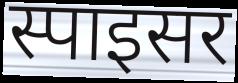
स्पाइसर